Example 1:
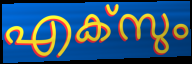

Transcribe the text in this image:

എക്‌സും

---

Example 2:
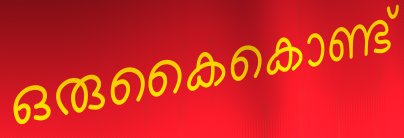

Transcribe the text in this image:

ഒരുകൈകൊണ്ട്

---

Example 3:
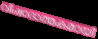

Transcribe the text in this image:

വിഷാദാത്മകമായി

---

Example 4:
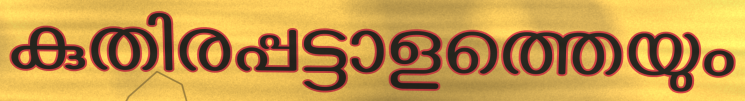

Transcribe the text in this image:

കുതിരപ്പട്ടാളത്തെയും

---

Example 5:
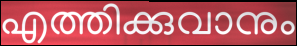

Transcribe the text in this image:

എത്തിക്കുവാനും